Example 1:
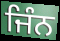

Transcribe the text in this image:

ਜਿੰਨ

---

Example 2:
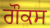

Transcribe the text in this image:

ਗੌਕਸ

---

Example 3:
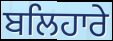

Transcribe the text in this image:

ਬਲਿਹਾਰੇ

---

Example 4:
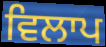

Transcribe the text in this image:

ਵਿਲਾਪ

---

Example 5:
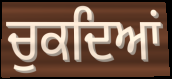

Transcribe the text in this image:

ਚੁਕਦਿਆਂ